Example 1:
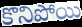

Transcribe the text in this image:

కొనిపోయి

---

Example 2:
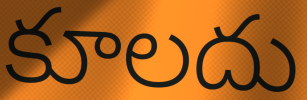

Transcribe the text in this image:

కూలదు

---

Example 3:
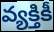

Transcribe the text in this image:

వ్యక్తికీ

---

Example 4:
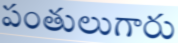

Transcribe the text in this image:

పంతులుగారు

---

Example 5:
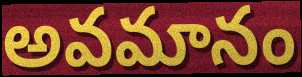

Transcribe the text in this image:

అవమానం